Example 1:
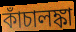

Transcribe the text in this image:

কাঁচালঙ্কা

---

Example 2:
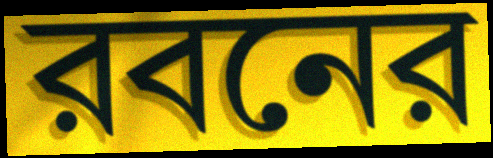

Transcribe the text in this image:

রবনের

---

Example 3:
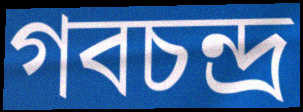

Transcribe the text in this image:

গবচন্দ্র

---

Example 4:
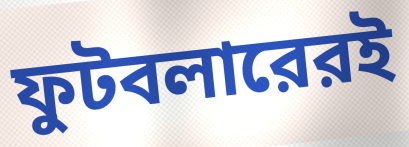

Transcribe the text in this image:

ফুটবলারেরই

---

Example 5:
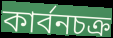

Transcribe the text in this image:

কার্বনচক্র